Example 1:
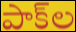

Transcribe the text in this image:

పాక్‌ల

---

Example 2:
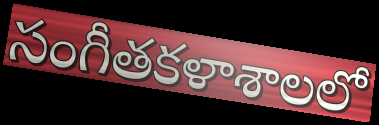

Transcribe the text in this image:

సంగీతకళాశాలలో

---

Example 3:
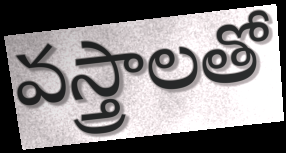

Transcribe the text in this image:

వస్త్రాలతో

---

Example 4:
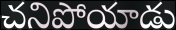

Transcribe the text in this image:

చనిపోయాడు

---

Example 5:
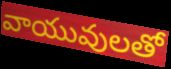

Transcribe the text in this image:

వాయువులతో